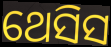
ଥେସିସ